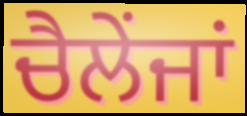
ਚੈਲੇਂਜਾਂ